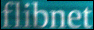
flibnet